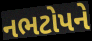
નભટોપને